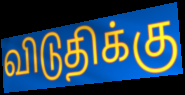
விடுதிக்கு